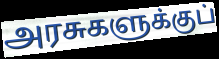
அரசுகளுக்குப்